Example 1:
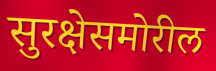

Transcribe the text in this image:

सुरक्षेसमोरील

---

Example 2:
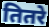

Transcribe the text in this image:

तितरे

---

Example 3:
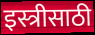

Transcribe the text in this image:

इस्त्रीसाठी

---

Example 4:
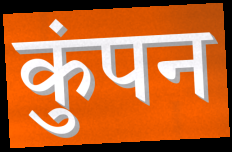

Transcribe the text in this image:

कुंपन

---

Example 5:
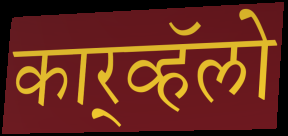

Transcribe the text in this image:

कार्व्हॅलो